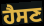
ਹੈਸਣ